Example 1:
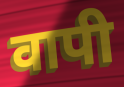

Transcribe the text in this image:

वापी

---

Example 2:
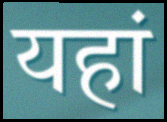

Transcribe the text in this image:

यहां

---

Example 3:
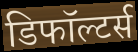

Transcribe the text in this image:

डिफॉल्टर्स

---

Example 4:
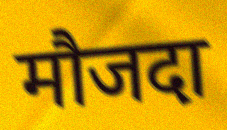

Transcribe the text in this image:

मौजदा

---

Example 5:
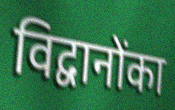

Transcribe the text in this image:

विद्वानोंका